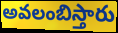
అవలంబిస్తారు